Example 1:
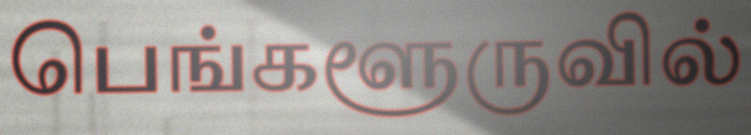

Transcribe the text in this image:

பெங்களூருவில்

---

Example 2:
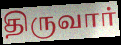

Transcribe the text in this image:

திருவார்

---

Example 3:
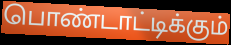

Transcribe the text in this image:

பொண்டாட்டிக்கும்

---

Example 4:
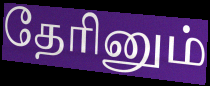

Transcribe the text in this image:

தேரினும்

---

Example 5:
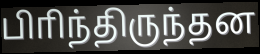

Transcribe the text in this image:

பிரிந்திருந்தன